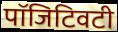
पॉजिटिवटी